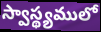
స్వాస్థ్యములో